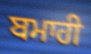
ਬਮਾਹੀ